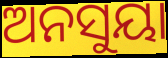
ଅନସୁୟା